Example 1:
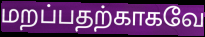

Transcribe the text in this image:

மறப்பதற்காகவே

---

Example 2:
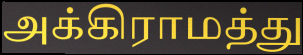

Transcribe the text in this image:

அக்கிராமத்து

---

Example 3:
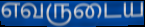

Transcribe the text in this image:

எவருடைய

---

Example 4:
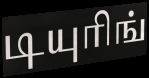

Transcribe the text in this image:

டியுரிங்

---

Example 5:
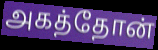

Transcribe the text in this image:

அகத்தோன்